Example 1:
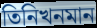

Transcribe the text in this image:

তিনিখনমান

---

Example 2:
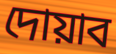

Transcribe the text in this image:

দোয়াব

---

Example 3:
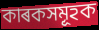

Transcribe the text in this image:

কাৰকসমূহক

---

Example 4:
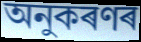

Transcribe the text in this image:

অনুকৰণৰ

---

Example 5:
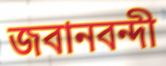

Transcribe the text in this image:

জবানবন্দী